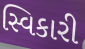
સ્વિકારી